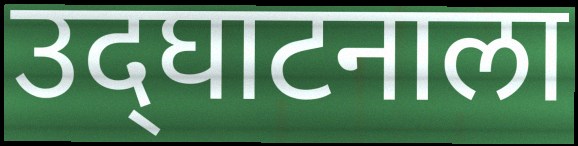
उद्घाटनाला